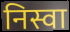
निस्वा